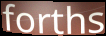
forths